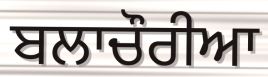
ਬਲਾਚੌਰੀਆ